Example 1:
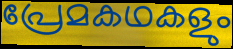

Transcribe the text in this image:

പ്രേമകഥകളും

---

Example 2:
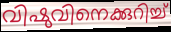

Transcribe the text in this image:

വിഷുവിനെക്കുറിച്ച്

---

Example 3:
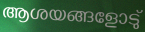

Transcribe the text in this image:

ആശയങ്ങളോടു്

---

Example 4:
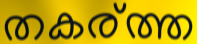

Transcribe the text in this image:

തകര്ത്ത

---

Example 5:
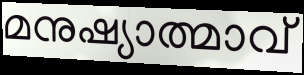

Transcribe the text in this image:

മനുഷ്യാത്മാവ്